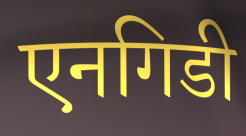
एनगिडी